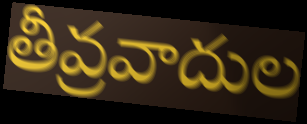
తీవ్రవాదుల